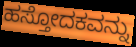
ಹಸ್ತೋದಕವನ್ನು